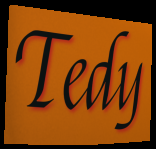
Tedy